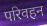
परिवहन